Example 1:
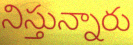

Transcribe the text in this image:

నిస్తున్నారు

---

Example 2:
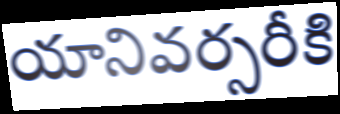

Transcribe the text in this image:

యానివర్సరీకి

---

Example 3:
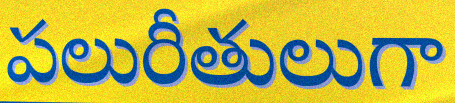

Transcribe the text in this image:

పలురీతులుగా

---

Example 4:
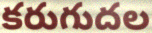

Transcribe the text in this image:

కరుగుదల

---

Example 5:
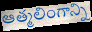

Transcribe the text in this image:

ఆత్మలింగాన్ని